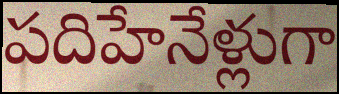
పదిహేనేళ్లుగా